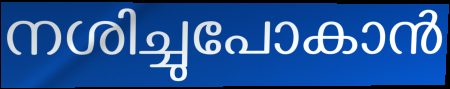
നശിച്ചുപോകാൻ